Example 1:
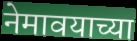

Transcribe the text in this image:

नेमावयाच्या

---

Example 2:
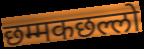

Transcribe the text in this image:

छम्मकछल्लो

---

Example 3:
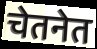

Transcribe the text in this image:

चेतनेत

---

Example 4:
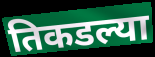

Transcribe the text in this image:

तिकडल्या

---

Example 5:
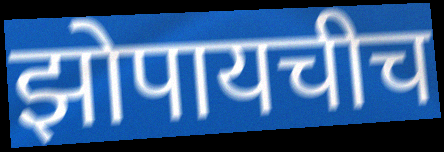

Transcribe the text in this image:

झोपायचीच